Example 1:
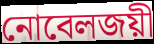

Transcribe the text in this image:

নোবেলজয়ী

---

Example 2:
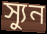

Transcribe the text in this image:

স্যুন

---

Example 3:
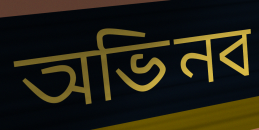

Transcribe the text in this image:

অভিনব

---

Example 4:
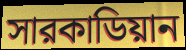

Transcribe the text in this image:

সারকাডিয়ান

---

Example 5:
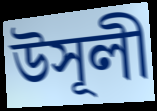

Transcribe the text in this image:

উসূলী